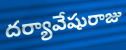
దర్యావేషురాజు